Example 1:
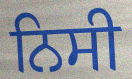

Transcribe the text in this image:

ਨਿਸੀ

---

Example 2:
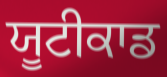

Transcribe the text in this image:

ਯੂਟੀਕਾਡ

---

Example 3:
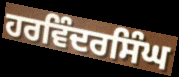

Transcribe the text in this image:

ਹਰਵਿੰਦਰਸਿੰਘ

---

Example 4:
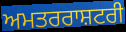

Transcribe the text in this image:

ਅਮਤਰਰਾਸ਼ਟਰੀ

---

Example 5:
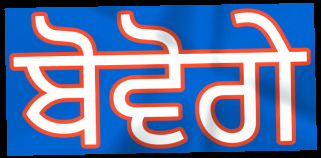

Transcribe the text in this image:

ਬੋਵੋਗੇ